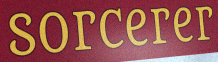
sorcerer